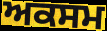
ਅਕਸਮ